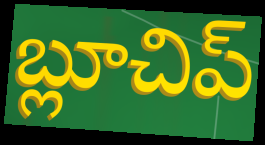
బ్లూచిప్